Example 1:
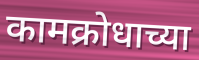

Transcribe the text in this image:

कामक्रोधाच्या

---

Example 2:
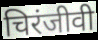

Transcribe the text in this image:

चिरंजीवी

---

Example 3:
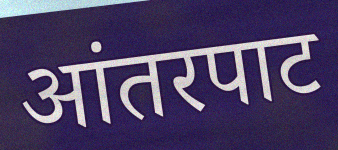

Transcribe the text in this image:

आंतरपाट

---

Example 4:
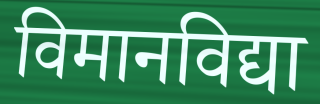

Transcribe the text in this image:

विमानविद्या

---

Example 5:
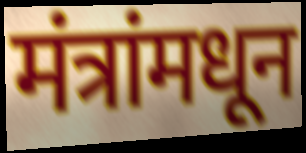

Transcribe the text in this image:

मंत्रांमधून